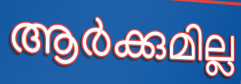
ആർക്കുമില്ല